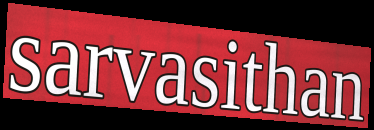
sarvasithan